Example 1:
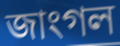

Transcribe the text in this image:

জাংগল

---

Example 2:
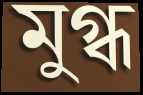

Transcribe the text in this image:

মুগ্ধ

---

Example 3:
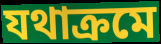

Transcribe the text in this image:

যথাক্ৰমে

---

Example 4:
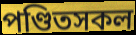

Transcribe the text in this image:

পণ্ডিতসকল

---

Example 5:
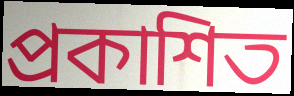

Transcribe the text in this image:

প্ৰকাশিত